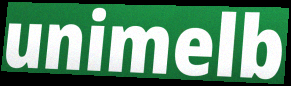
unimelb